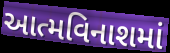
આત્મવિનાશમાં